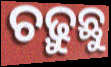
ଚଢ଼ୁଛୁ